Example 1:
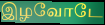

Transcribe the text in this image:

இழவோடே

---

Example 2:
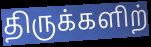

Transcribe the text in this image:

திருக்களிற்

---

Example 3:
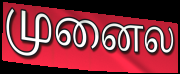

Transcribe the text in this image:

முனைல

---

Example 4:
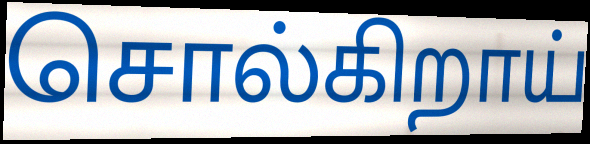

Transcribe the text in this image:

சொல்கிறாய்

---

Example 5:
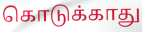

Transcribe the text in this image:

கொடுக்காது